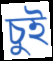
চুই